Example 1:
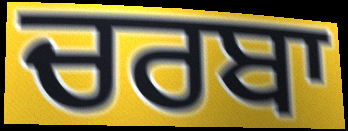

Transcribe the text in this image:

ਚਰਬਾ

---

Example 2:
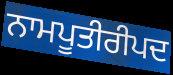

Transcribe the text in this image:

ਨਾਮਪੂਤੀਰੀਪਦ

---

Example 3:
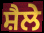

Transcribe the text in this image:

ਸ਼ੈਲੇ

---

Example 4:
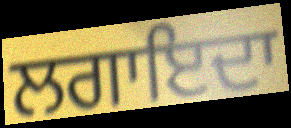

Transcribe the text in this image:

ਲਗਾਇਦਾ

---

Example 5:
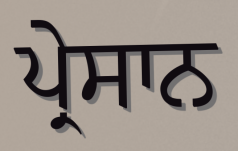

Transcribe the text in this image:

ਪ੍ਰੇਸਾਨ